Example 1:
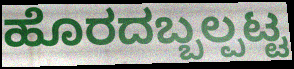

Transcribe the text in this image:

ಹೊರದಬ್ಬಲ್ಪಟ್ಟ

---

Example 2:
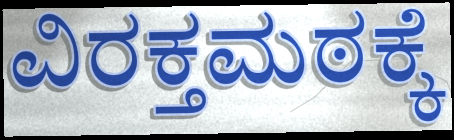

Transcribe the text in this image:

ವಿರಕ್ತಮಠಕ್ಕೆ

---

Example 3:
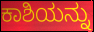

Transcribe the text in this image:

ಕಾಶಿಯನ್ನು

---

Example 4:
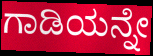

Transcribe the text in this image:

ಗಾಡಿಯನ್ನೇ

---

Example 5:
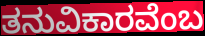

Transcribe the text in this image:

ತನುವಿಕಾರವೆಂಬ